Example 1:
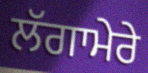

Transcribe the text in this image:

ਲੱਗਾਮੇਰੇ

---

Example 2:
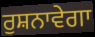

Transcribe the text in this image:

ਰੁਸ਼ਨਾਵੇਗਾ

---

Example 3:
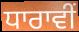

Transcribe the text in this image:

ਧਾਰਾਵੀਂ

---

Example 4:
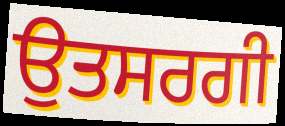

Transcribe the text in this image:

ਉਤਸਰਗੀ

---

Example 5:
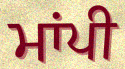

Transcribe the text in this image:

ਮਾਂਪੀ